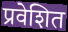
प्रवेशित